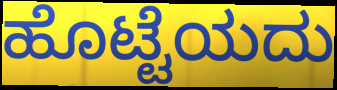
ಹೊಟ್ಟೆಯದು